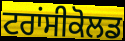
ਟਰਾਂਸੀਕੋਲਡ